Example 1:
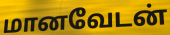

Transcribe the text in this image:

மானவேடன்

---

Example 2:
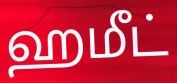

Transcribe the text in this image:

ஹமீட்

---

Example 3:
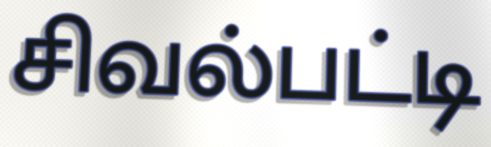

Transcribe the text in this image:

சிவல்பட்டி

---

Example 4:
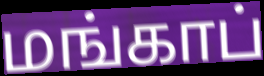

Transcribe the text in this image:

மங்காப்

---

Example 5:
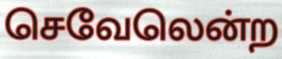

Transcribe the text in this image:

செவேலென்ற